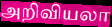
அறிவியலா